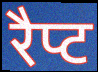
रैप्ट